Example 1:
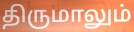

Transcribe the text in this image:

திருமாலும்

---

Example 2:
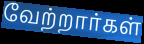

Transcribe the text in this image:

வேற்றார்கள்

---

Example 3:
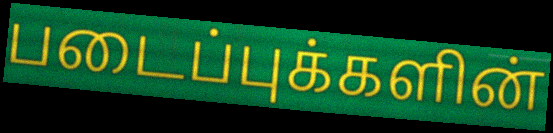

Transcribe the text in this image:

படைப்புக்களின்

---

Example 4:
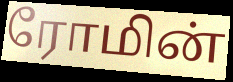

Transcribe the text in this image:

ரோமின்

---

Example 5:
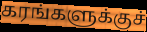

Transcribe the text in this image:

கரங்களுக்குச்